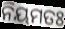
ନିୟମତଃ